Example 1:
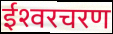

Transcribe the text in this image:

ईश्वरचरण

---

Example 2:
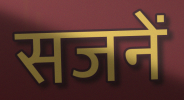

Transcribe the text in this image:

सजनें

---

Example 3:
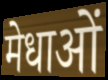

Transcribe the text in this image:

मेधाओं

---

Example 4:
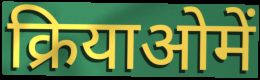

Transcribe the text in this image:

क्रियाओमें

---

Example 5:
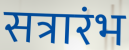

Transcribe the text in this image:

सत्रारंभ